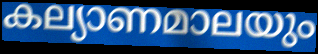
കല്യാണമാലയും